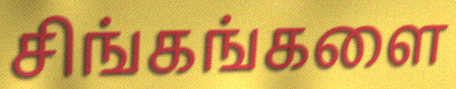
சிங்கங்களை